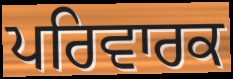
ਪਰਿਵਾਰਕ